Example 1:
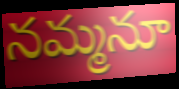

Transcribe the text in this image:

నమ్మనూ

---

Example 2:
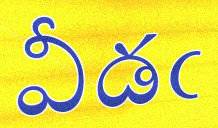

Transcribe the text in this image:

వీడఁ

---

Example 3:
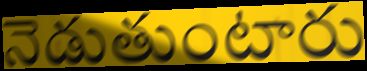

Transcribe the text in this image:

నెడుతుంటారు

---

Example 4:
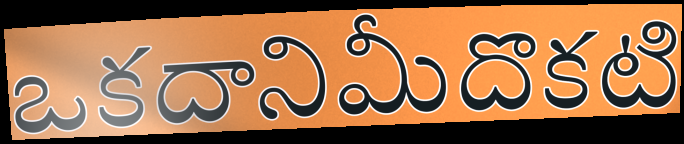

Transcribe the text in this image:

ఒకదానిమీదొకటి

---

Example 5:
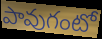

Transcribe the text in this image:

పావుగంటో